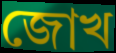
জোখ